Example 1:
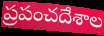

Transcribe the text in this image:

ప్రపంచదేశాల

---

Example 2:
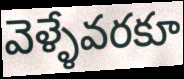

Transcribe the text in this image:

వెళ్ళేవరకూ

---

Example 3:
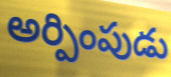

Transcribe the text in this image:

అర్పింపుడు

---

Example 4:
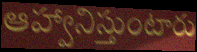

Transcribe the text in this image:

ఆహ్వానిస్తుంటారు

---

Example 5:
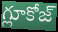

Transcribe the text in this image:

గ్లూకోజ్